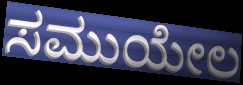
ಸಮುಯೇಲ